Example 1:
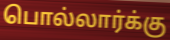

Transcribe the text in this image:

பொல்லார்க்கு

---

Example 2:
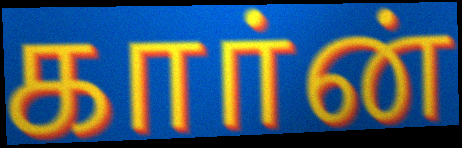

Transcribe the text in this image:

கார்ன்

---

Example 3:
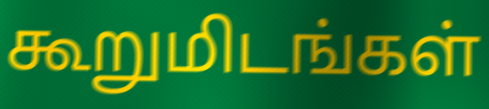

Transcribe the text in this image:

கூறுமிடங்கள்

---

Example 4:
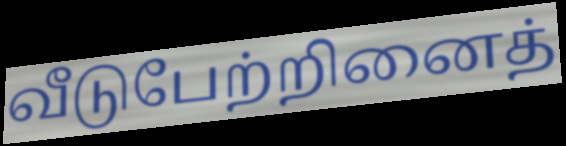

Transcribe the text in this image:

வீடுபேற்றினைத்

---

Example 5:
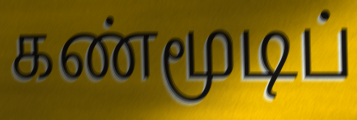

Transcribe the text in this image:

கண்மூடிப்